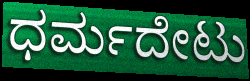
ಧರ್ಮದೇಟು